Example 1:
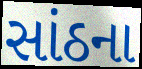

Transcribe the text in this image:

સાંઠના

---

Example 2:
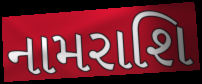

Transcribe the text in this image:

નામરાશિ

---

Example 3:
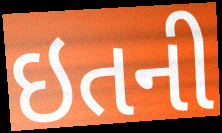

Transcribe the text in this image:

ઇતની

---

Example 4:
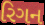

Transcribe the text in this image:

રિગન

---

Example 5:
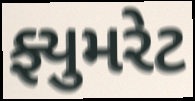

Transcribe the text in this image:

ફ્યુમરેટ